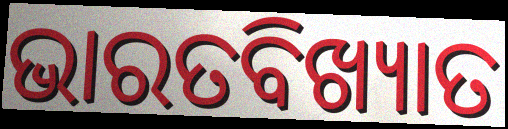
ଭାରତବିଖ୍ୟାତ